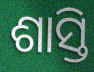
ଶାସ୍ତି